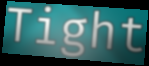
Tight